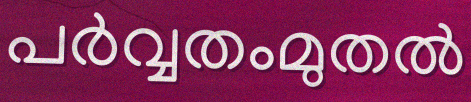
പർവ്വതംമുതൽ